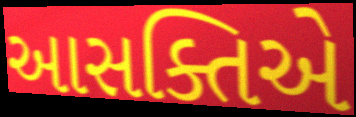
આસક્તિએ